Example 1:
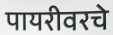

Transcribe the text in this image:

पायरीवरचे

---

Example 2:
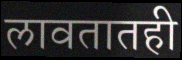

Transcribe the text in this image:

लावतातही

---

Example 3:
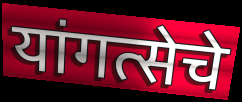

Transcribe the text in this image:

यांगत्सेचे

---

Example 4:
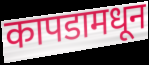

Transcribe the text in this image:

कापडामधून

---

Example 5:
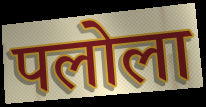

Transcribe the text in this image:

पलोला